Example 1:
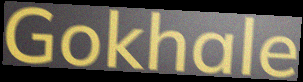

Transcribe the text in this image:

Gokhale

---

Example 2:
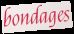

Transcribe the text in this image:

bondages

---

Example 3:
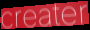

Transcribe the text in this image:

creater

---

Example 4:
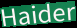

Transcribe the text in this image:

Haider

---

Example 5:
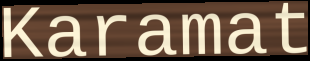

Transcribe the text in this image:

Karamat